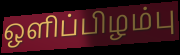
ஒளிப்பிழம்பு